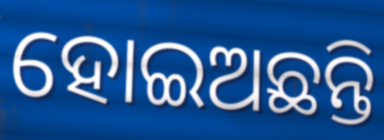
ହୋଇଅଛନ୍ତି